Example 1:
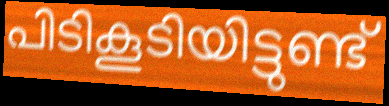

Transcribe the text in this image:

പിടികൂടിയിട്ടുണ്ട്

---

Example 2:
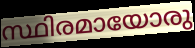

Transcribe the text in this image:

സ്ഥിരമായോരു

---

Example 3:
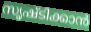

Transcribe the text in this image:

സൃഷ്ടിക്കാൻ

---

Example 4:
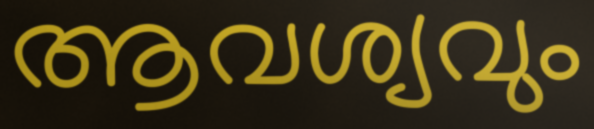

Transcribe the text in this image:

ആവശ്യവും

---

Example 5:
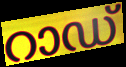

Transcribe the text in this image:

റാഡ്